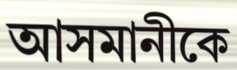
আসমানীকে